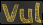
Vul